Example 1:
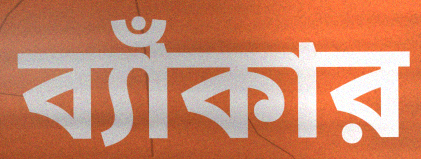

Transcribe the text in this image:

ব্যাঁকার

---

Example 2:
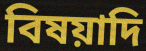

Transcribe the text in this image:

বিষয়াদি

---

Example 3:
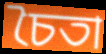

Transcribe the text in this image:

চৈতা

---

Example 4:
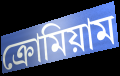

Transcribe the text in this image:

ক্রোমিয়াম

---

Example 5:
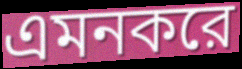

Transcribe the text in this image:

এমনকরে